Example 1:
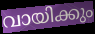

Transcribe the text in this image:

വായിക്കും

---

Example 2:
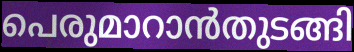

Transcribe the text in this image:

പെരുമാറാൻതുടങ്ങി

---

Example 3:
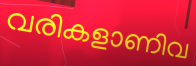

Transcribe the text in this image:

വരികളാണിവ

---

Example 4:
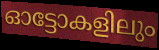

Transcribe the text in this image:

ഓട്ടോകളിലും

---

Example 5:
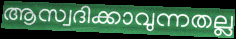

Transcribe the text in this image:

ആസ്വദിക്കാവുന്നതല്ല